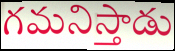
గమనిస్తాడు